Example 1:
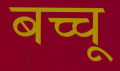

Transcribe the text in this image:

बच्चू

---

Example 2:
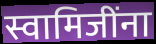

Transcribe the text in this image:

स्वामिजींना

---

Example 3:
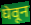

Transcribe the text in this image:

घेवून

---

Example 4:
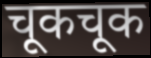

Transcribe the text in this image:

चूकचूक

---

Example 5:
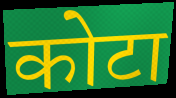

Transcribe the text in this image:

कोटा